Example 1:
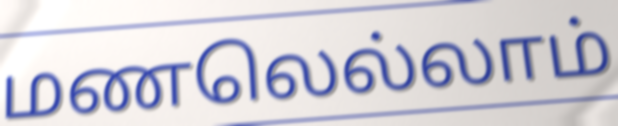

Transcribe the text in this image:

மணலெல்லாம்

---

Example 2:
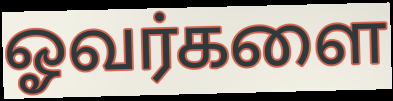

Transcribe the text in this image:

ஓவர்களை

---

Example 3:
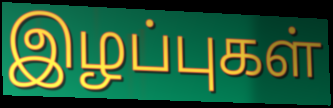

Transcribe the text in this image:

இழப்புகள்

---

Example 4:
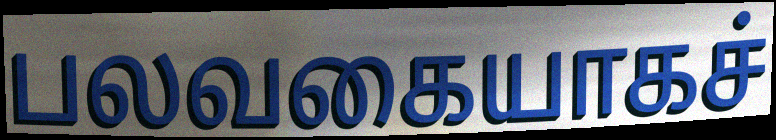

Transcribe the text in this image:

பலவகையாகச்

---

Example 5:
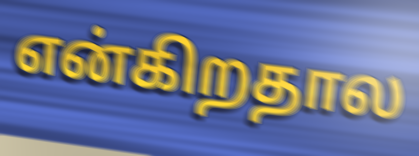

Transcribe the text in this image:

என்கிறதால